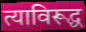
त्याविरूद्ध